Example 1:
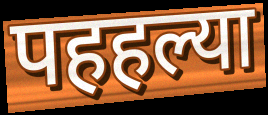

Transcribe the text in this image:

पहहल्या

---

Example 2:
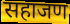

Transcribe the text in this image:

सहाजण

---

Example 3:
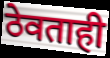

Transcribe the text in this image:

ठेवताही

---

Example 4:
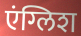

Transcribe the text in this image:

एंग्लिश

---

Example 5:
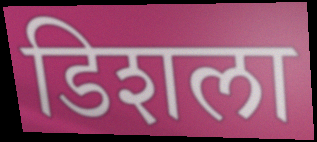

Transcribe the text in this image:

डिशला